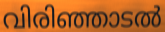
വിരിഞ്ഞാടൽ